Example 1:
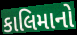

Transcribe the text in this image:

કાલિમાનો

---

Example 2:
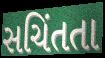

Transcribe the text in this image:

સચિંતતા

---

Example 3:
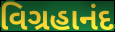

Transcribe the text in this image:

વિગ્રહાનંદ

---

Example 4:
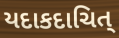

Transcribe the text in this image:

યદાકદાચિત્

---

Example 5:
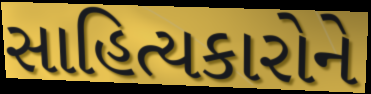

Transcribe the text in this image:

સાહિત્યકારોને